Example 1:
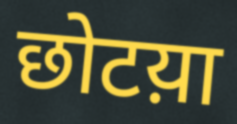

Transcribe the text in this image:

छोटय़ा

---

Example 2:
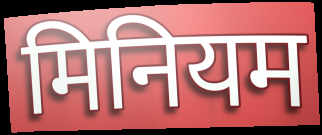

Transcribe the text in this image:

मिनियम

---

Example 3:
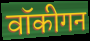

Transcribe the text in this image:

वॉकीगन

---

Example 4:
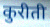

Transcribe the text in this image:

कुरीती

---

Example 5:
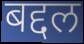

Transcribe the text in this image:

बद्दल